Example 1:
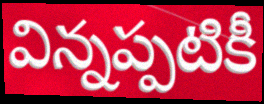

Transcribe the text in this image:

విన్నప్పటికీ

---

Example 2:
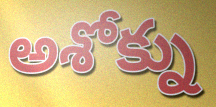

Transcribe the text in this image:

అశోక్ను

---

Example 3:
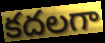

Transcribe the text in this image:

కదలగా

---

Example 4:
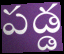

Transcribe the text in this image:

పడ్డ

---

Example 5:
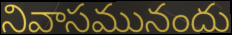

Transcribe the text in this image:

నివాసమునందు